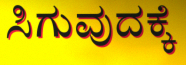
ಸಿಗುವುದಕ್ಕೆ